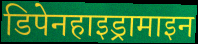
डिपेनहाइड्रामाइन